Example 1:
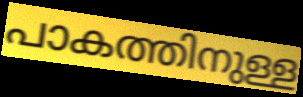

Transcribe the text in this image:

പാകത്തിനുള്ള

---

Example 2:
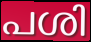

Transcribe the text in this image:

പശി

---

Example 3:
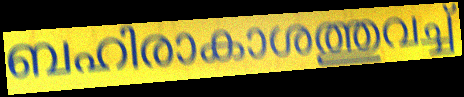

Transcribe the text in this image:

ബഹിരാകാശത്തുവച്ച്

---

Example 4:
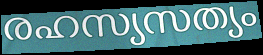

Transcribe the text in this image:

രഹസ്യസത്യം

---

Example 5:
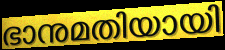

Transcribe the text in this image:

ഭാനുമതിയായി